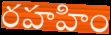
రహహిం